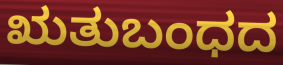
ಋತುಬಂಧದ